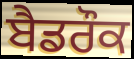
ਬੈਡਰੌਕ